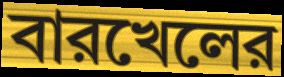
বারখেলের